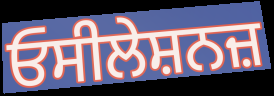
ਓਸੀਲੇਸ਼ਨਜ਼